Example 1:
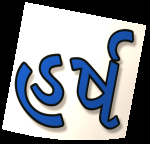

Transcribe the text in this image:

હર્ષ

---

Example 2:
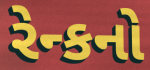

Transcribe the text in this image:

રેન્કનો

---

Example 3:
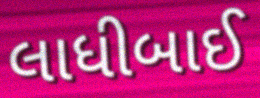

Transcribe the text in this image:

લાધીબાઈ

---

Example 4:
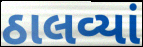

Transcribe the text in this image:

ઠાલવ્યાં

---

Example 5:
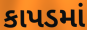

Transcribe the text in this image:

કાપડમાં